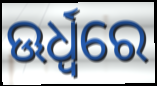
ଊର୍ଧ୍ୱରେ